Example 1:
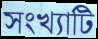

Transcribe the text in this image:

সংখ্যাটি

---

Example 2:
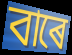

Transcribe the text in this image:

বাৰে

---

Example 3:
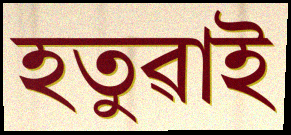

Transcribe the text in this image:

হতুৱাই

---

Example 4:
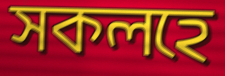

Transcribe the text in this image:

সকলহে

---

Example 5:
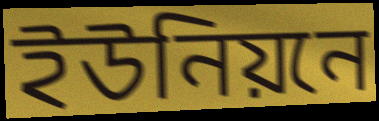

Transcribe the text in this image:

ইউনিয়নে